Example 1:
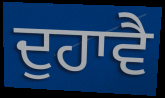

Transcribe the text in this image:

ਦੁਹਾਵੈ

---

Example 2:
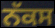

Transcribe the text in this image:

ਨੱਕਸ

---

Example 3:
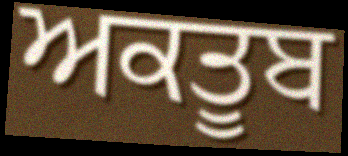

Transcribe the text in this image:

ਅਕਤੂਬ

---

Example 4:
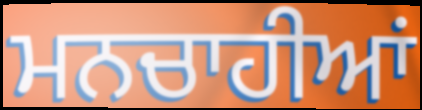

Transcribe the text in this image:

ਮਨਚਾਹੀਆਂ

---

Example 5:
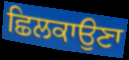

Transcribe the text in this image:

ਛਿਲਕਾਉਣਾ